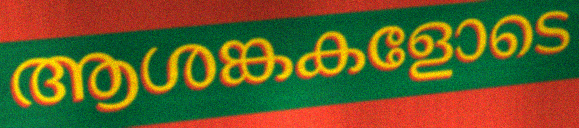
ആശങ്കകളോടെ